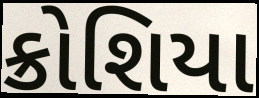
ક્રોશિયા